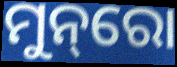
ମୁନ୍‌ରୋ